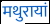
मथुरायां